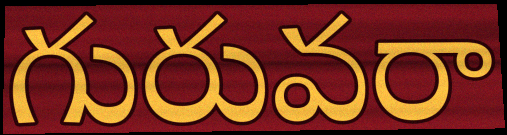
గురువరా